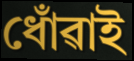
ধোঁৱাই